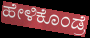
ಹೇಳಿಕೊಂಡ್ರೆ